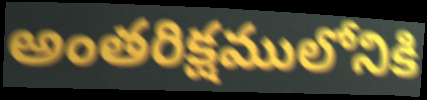
అంతరిక్షములోనికి